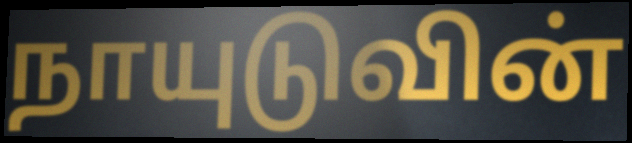
நாயுடுவின்